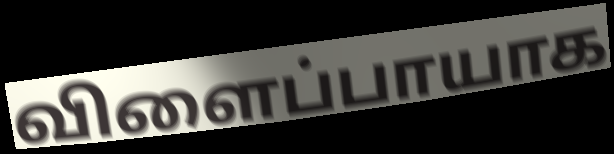
விளைப்பாயாக